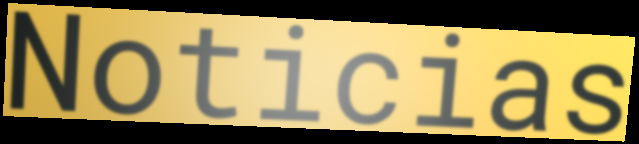
Noticias